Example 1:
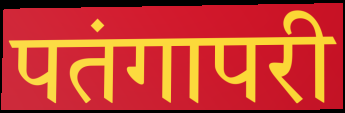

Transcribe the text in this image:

पतंगापरी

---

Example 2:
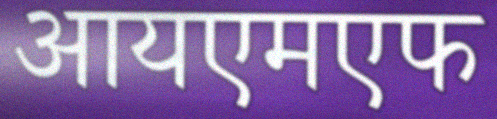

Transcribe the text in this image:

आयएमएफ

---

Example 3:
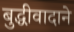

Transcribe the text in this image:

बुद्धीवादाने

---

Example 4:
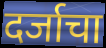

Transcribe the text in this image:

दर्जाचा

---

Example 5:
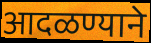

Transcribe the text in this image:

आदळण्याने